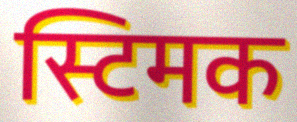
स्टिमक